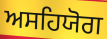
ਅਸਹਿਯੋਗ